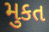
મુકત